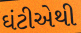
ઘંટીએથી